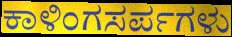
ಕಾಳಿಂಗಸರ್ಪಗಳು